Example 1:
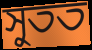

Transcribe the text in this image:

সুতত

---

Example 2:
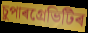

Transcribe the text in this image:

চুপাৰগ্ৰেভিটিৰ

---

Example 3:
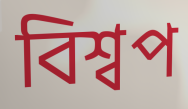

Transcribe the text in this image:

বিশ্বপ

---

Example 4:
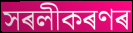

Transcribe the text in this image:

সৰলীকৰণৰ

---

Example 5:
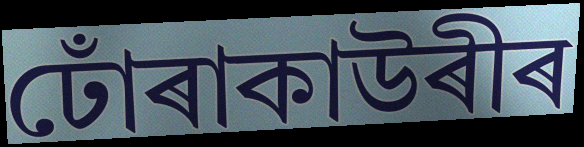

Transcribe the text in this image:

ঢোঁৰাকাউৰীৰ